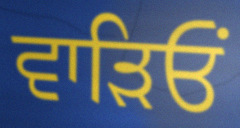
ਵਾੜਿਓਂ